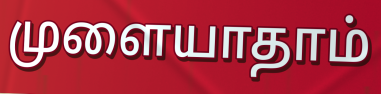
முளையாதாம்